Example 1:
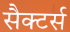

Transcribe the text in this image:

सैक्टर्स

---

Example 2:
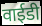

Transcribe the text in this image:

वाईडी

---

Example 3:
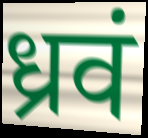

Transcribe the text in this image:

ध्रवं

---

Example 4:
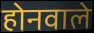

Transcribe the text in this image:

होनवाले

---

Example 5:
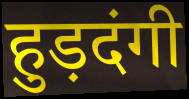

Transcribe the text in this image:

हुड़दंगी